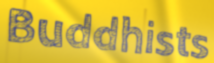
Buddhists